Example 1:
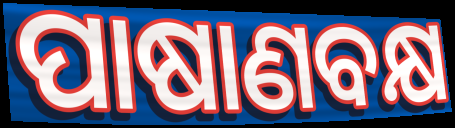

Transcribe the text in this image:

ପାଷାଣବକ୍ଷ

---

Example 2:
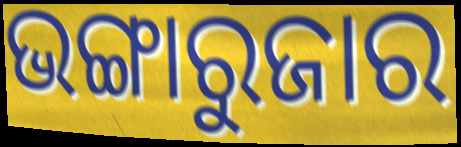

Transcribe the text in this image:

ଭଙ୍ଗାରୁଜାର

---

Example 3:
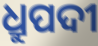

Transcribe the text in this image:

ଧ୍ରୁପଦୀ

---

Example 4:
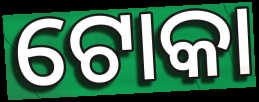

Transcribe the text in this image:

ଟୋକା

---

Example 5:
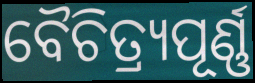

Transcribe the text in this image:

ବୈଚିତ୍ର୍ୟପୂର୍ଣ୍ଣ